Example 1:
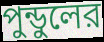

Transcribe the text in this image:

পুন্ডুলের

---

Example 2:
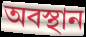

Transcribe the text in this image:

অবস্থান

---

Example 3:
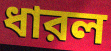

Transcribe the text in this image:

ধারল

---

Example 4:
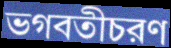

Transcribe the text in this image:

ভগবতীচরণ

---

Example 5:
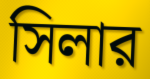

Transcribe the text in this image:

সিলার